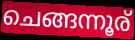
ചെങ്ങന്നൂര്